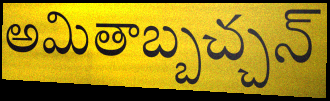
అమితాబ్బచ్చన్